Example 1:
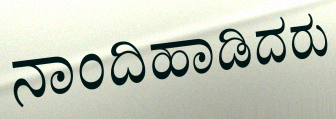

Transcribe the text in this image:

ನಾಂದಿಹಾಡಿದರು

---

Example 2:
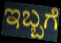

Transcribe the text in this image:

ಇಬ್ಬಗೆ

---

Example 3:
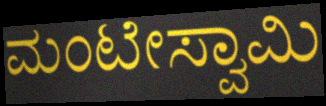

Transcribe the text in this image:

ಮಂಟೇಸ್ವಾಮಿ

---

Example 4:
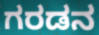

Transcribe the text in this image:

ಗರಡನ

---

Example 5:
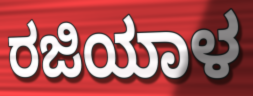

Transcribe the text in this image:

ರಜಿಯಾಳ